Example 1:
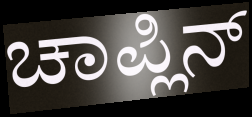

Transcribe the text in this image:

ಚಾಪ್ಲಿನ್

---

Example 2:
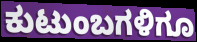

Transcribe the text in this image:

ಕುಟುಂಬಗಳಿಗೂ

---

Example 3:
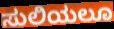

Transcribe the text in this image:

ಸುಲಿಯಲೂ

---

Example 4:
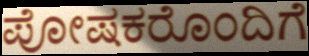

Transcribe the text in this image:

ಪೋಷಕರೊಂದಿಗೆ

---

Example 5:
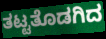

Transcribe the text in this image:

ತಟ್ಟತೊಡಗಿದ